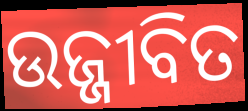
ଉଜ୍ଜୀବିତ